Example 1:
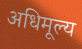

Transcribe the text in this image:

अधिमूल्य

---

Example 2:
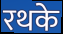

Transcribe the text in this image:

रथके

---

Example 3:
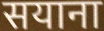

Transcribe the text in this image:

सयाना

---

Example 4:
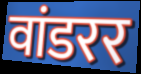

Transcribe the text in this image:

वांडरर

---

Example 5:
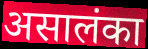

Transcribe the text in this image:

असालंका